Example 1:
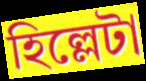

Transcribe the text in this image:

হিল্লেটা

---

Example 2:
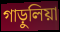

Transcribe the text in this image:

গাড়ুলিয়া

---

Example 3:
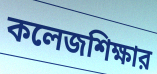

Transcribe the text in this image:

কলেজশিক্ষার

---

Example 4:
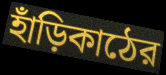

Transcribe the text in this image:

হাঁড়িকাঠের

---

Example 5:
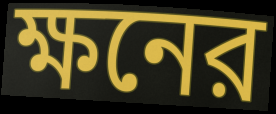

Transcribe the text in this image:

ক্ষনের